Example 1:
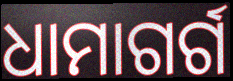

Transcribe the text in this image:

ଧାମାଗର୍ଗ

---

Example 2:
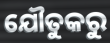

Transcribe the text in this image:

ଯୌତୁକରୁ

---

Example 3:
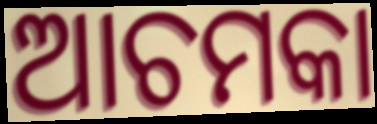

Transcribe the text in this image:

ଆଚମକା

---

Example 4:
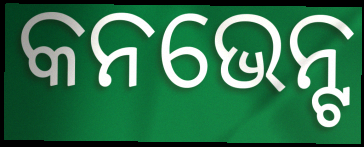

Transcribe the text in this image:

କନଭେନ୍ଟ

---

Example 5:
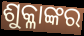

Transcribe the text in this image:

ଶୁକ୍ଳାଙ୍କର